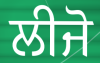
ਲੀਜੋ